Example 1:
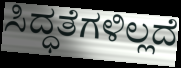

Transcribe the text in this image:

ಸಿದ್ಧತೆಗಳಿಲ್ಲದೆ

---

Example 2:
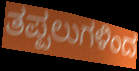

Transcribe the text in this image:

ತಪ್ಪಲುಗಳಿಂದ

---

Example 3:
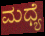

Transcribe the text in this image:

ಮಧ್ಯೆ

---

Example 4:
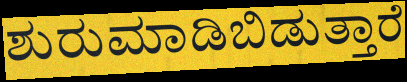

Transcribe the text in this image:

ಶುರುಮಾಡಿಬಿಡುತ್ತಾರೆ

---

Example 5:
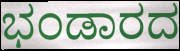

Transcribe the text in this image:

ಭಂಡಾರದ